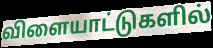
விளையாட்டுகளில்